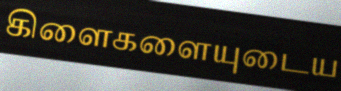
கிளைகளையுடைய